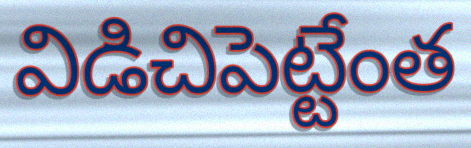
విడిచిపెట్టేంత